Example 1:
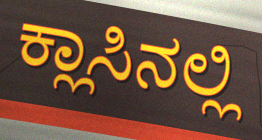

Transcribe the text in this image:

ಕ್ಲಾಸಿನಲ್ಲಿ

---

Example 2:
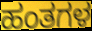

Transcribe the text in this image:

ಹಂತಗಳ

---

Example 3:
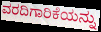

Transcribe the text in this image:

ವರದಿಗಾರಿಕೆಯನ್ನು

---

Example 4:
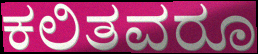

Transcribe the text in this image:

ಕಲಿತವರೂ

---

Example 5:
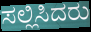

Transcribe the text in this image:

ಸಲ್ಲಿಸಿದರು